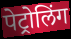
पेट्रोलिंग